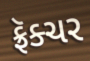
ફ્રૅક્ચર